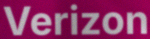
Verizon